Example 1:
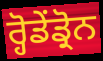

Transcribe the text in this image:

ਰ੍ਹੋਡੇਂਡ੍ਰੋਨ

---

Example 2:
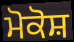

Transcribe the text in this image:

ਮੋਕੋਸ਼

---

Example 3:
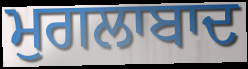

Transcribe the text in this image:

ਮੁਗਲਾਬਾਦ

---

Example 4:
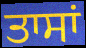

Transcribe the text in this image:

ਤਾਸਾਂ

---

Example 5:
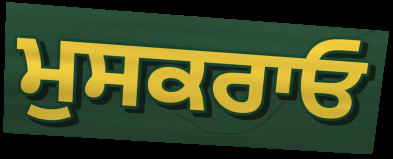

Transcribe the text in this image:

ਮੁਸਕਰਾਓ